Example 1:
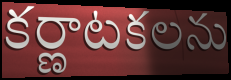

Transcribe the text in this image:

కర్ణాటకలను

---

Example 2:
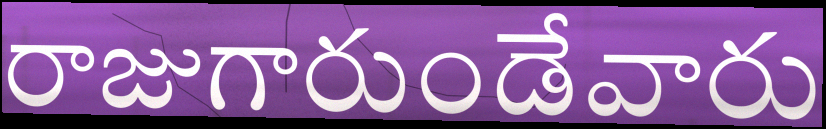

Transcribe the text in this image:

రాజుగారుండేవారు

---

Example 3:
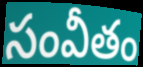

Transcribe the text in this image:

సంవీతం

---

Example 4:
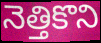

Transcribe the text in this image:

నెత్తికొని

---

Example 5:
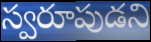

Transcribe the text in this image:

స్వరూపుడని